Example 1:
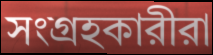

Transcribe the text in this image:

সংগ্রহকারীরা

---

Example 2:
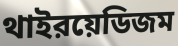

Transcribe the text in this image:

থাইরয়েডিজম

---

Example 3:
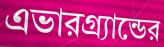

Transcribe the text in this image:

এভারগ্র্যান্ডের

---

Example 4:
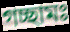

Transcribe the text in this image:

গচ্ছামঃ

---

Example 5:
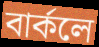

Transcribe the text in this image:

বার্কলে